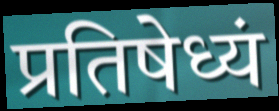
प्रतिषेध्यं